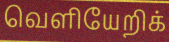
வெளியேறிக்